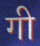
गी